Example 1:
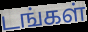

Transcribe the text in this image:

டங்கள்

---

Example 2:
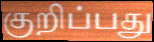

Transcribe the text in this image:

குறிப்பது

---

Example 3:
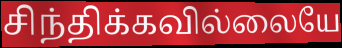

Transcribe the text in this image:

சிந்திக்கவில்லையே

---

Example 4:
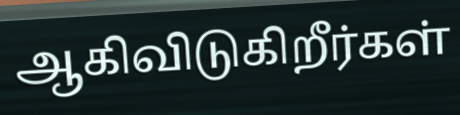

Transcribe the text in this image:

ஆகிவிடுகிறீர்கள்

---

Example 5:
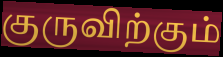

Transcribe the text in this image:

குருவிற்கும்